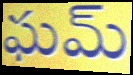
ఘమ్